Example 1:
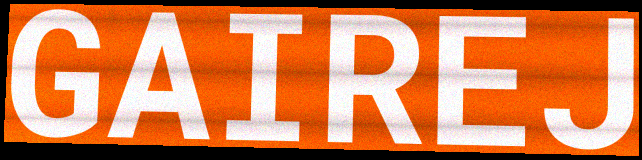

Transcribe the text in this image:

GAIREJ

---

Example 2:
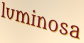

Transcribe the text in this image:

luminosa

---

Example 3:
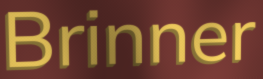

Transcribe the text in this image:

Brinner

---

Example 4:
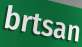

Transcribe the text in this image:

brtsan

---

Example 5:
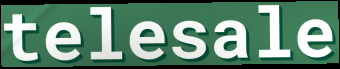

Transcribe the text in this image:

telesale